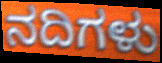
ನದಿಗಳು